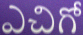
ఎచిగో